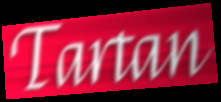
Tartan